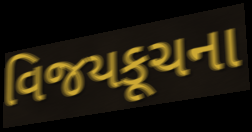
વિજયકૂચના